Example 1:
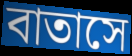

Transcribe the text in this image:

বাতাসে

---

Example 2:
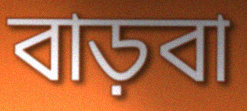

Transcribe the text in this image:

বাড়বা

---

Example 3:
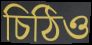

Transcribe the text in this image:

চিঠিও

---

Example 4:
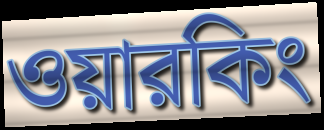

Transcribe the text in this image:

ওয়ারকিং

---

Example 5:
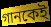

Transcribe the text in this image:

গানকেই